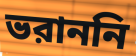
ভরাননি